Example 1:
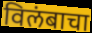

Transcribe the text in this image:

विलंबाचा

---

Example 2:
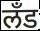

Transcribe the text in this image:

लँड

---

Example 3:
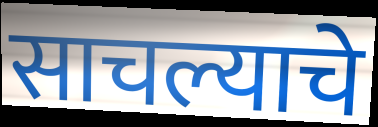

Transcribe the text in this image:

साचल्याचे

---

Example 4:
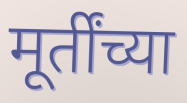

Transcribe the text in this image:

मूर्तींच्या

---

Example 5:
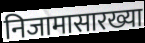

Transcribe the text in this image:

निजामासारख्या